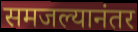
समजल्यानंतर